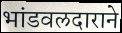
भांडवलदाराने